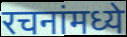
रचनांमध्ये